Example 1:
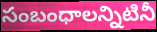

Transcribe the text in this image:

సంబంధాలన్నిటినీ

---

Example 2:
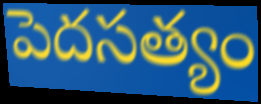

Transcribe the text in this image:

పెదసత్యం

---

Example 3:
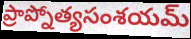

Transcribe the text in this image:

ప్రాప్నోత్యసంశయమ్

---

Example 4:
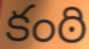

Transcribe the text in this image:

కంఠి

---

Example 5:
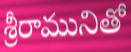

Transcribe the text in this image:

శ్రీరామునితో